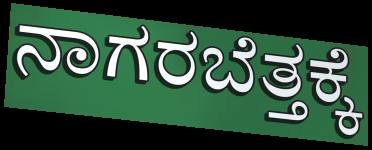
ನಾಗರಬೆತ್ತಕ್ಕೆ